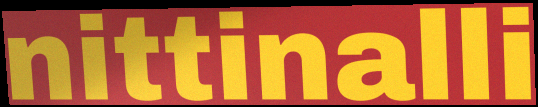
nittinalli